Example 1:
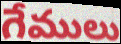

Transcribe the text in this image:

గేములు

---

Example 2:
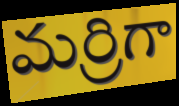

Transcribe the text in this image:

మర్రిగా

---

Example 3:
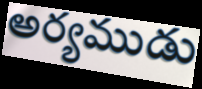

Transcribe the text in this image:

అర్యముడు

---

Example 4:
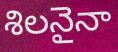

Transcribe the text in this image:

శిలనైనా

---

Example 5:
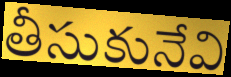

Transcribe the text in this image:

తీసుకునేవి